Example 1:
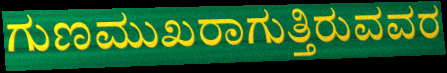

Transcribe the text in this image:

ಗುಣಮುಖರಾಗುತ್ತಿರುವವರ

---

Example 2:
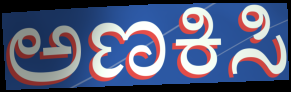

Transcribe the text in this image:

ಅಣಕಿಸಿ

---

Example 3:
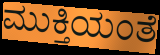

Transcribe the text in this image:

ಮುಕ್ತಿಯಂತೆ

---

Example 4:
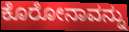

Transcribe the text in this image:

ಕೊರೋನಾವನ್ನು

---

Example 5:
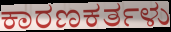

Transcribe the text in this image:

ಕಾರಣಕರ್ತಳು